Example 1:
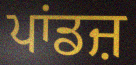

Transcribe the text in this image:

ਪਾਂਡਜ਼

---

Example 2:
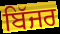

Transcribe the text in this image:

ਬਿੱਜਰ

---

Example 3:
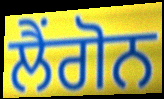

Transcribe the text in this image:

ਲੈਂਗੋਨ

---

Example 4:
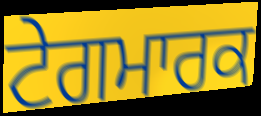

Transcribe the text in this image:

ਟੇਗਮਾਰਕ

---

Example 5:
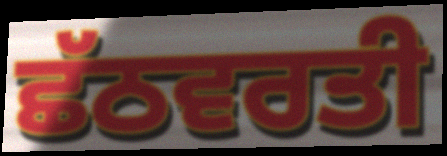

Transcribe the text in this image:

ਛੱਠਵਰਤੀ